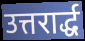
उत्तरार्द्ध